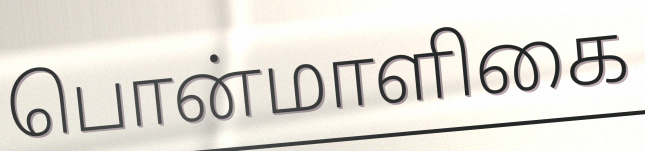
பொன்மாளிகை